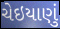
ચેઇયાણું